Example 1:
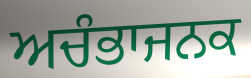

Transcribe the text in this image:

ਅਚੰਭਾਜਨਕ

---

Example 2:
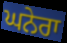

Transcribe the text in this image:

ਘਨੇਰਾ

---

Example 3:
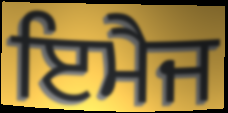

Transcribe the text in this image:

ਇਮੈਜ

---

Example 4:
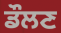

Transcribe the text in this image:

ਡੌਲਣ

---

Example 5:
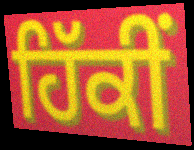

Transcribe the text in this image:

ਹਿੱਕੀਂ